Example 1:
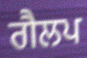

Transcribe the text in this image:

ਗੈਲਪ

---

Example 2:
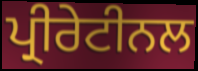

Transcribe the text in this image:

ਪ੍ਰੀਰੇਟੀਨਲ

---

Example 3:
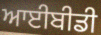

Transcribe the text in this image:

ਆਈਬੀਡੀ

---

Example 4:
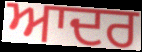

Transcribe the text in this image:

ਆਦਰ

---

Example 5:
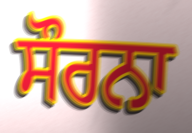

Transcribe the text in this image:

ਸੌਰਨਾ